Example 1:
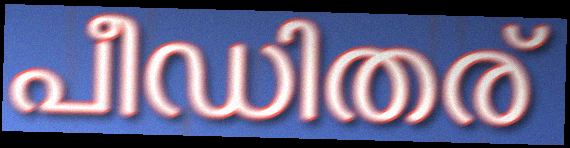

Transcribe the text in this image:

പീഡിതര്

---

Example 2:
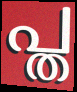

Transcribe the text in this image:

പ്ത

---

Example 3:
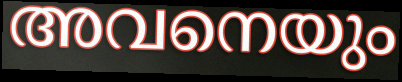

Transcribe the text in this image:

അവനെയും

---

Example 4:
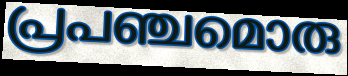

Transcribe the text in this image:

പ്രപഞ്ചമൊരു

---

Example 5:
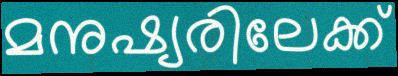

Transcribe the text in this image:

മനുഷ്യരിലേക്ക്